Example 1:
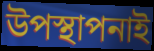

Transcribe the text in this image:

উপস্থাপনাই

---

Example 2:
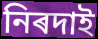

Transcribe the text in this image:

নিৰদাই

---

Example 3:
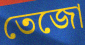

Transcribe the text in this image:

তেজো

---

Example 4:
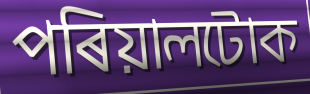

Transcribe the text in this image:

পৰিয়ালটোক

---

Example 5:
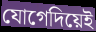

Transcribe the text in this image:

যোগেদিয়েই